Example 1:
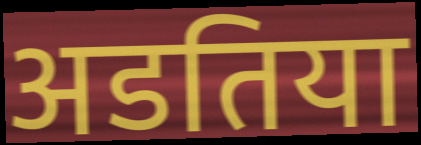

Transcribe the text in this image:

अडतिया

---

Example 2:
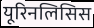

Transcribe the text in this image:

यूरिनलिसिस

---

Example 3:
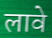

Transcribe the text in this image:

लावे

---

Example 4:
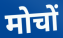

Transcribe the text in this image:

मोचों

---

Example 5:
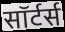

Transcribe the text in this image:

सॉर्टर्स